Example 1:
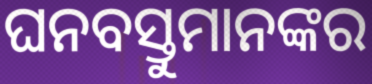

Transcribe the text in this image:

ଘନବସ୍ତୁମାନଙ୍କର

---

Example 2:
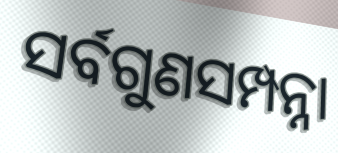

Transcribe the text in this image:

ସର୍ବଗୁଣସମ୍ପନ୍ନା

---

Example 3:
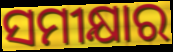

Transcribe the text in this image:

ସମୀକ୍ଷାର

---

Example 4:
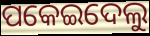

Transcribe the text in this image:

ପକେଇଦେଲୁ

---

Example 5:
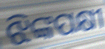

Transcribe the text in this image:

ଝିଙ୍କପକ୍ଷୀ